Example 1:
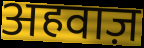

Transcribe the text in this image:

अहवाज़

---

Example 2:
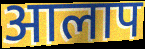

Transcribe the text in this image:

आलाप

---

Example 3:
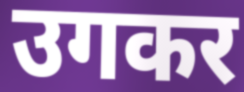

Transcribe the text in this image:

उगकर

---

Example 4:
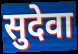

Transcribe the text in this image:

सुदेवा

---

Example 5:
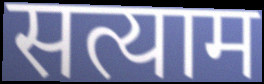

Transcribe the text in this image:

सत्याम